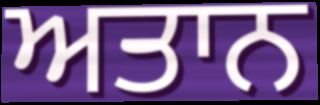
ਅਤਾਨ